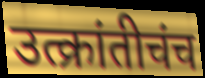
उत्क्रांतीचंच